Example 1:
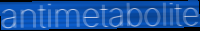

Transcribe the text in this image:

antimetabolite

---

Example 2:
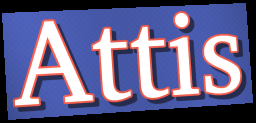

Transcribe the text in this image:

Attis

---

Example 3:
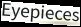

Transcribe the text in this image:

Eyepieces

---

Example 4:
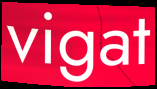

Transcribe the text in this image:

vigat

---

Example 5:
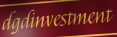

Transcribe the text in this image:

dgdinvestment